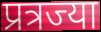
प्रत्रज्या